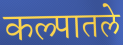
कल्पातले